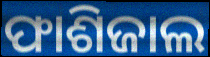
ଫାଶିଜାଲ